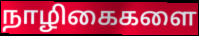
நாழிகைகளை